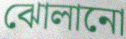
ঝোলানো